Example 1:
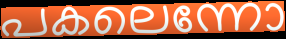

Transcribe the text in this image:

പകലെന്നോ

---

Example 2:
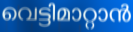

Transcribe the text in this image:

വെട്ടിമാറ്റാൻ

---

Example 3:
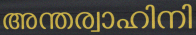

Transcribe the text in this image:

അന്തര്വാഹിനി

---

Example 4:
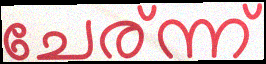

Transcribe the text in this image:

ചേര്ന്ന്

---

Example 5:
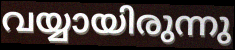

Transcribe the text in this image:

വയ്യായിരുന്നു